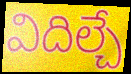
విదిల్చే